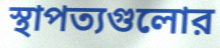
স্থাপত্যগুলোর